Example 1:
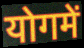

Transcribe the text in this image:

योगमें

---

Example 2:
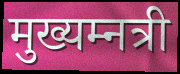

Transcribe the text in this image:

मुख्यम्नत्री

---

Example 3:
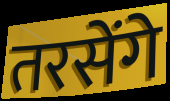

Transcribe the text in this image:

तरसेंगे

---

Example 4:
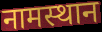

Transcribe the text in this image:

नामस्थान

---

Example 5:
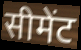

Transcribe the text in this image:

सीमेंट